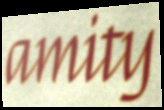
amity